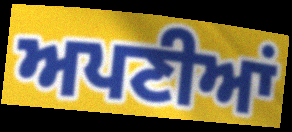
ਅਪਣੀਆਂ